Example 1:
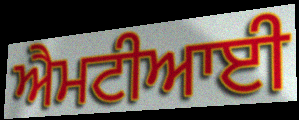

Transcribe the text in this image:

ਐਮਟੀਆਈ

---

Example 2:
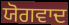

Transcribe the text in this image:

ਯੋਗਵਾਦ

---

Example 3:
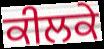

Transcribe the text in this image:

ਕੀਲਕੇ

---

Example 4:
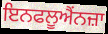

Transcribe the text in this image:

ਇਨਫਲੂਐਂਨਜ਼ਾ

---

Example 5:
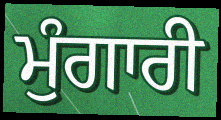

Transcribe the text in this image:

ਮੁੰਗਾਰੀ